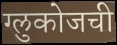
ग्लुकोजची